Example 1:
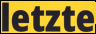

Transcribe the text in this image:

letzte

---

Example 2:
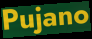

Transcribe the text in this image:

Pujano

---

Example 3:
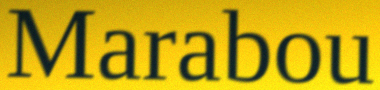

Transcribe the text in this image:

Marabou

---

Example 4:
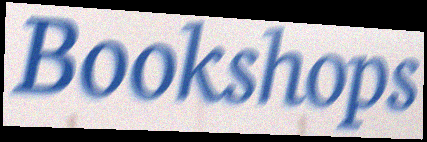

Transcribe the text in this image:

Bookshops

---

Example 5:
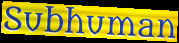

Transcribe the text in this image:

Subhuman